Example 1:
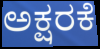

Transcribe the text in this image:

ಅಕ್ಷರಕೆ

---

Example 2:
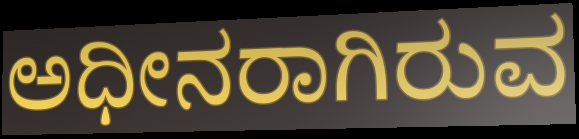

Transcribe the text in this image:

ಅಧೀನರಾಗಿರುವ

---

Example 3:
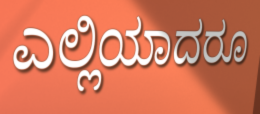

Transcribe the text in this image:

ಎಲ್ಲಿಯಾದರೂ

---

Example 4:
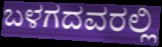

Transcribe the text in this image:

ಬಳಗದವರಲ್ಲಿ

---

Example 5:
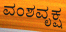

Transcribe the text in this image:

ವಂಶವೃಕ್ಷ